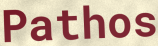
Pathos